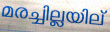
മരച്ചില്ലയില്